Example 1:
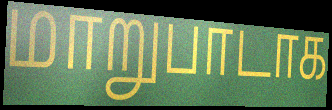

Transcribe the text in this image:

மாறுபாடாக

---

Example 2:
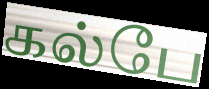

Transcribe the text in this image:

கல்பே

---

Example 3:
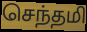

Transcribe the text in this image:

செந்தமி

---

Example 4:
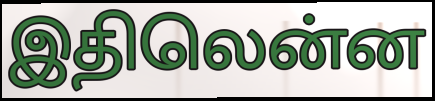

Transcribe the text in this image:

இதிலென்ன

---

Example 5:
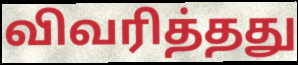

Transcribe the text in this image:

விவரித்தது